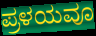
ಪ್ರಳಯವೂ